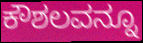
ಕೌಶಲವನ್ನೂ